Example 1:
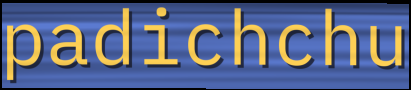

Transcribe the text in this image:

padichchu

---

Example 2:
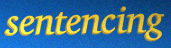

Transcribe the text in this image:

sentencing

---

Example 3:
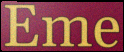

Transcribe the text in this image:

Eme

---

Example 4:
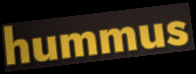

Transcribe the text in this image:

hummus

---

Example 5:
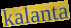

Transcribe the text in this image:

kalanta